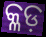
କ୍ଳଡ଼